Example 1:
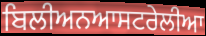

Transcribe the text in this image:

ਬਿਲੀਅਨਆਸਟਰੇਲੀਆ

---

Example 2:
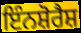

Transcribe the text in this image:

ਇੰਨਸ਼ੋਰੈਸ਼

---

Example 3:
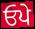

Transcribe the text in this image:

ਓਪੇ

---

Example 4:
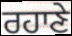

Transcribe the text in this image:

ਰਹਾਣੇ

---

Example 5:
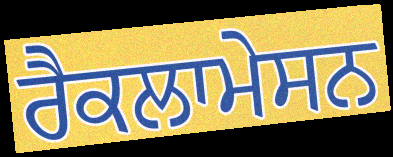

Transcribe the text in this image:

ਰੈਕਲਾਮੇਸਨ